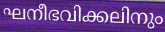
ഘനീഭവിക്കലിനും